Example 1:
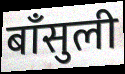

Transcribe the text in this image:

बाँसुली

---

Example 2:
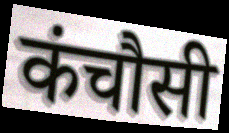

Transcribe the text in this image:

कंचौसी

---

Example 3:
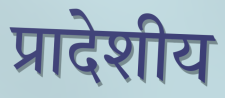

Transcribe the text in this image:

प्रादेशीय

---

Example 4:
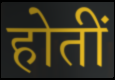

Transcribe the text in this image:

होतीं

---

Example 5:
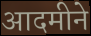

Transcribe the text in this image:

आदमीने